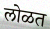
लोळत